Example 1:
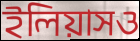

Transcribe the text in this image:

ইলিয়াসও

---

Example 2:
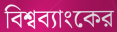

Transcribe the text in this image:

বিশ্বব্যাংকের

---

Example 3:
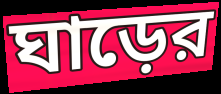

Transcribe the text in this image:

ঘাড়ের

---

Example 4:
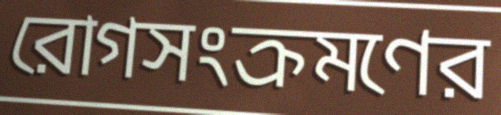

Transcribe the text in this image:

রোগসংক্রমণের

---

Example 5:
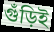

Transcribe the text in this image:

গুঁড়িই